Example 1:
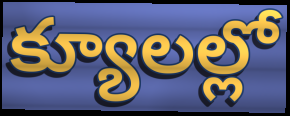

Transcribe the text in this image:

క్యూలల్లో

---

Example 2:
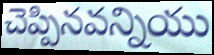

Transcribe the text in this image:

చెప్పినవన్నియు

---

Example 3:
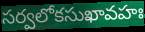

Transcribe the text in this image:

సర్వలోకసుఖావహః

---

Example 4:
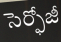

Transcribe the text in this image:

సెర్ఫోజీ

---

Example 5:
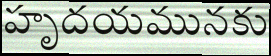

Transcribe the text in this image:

హృదయమునకు